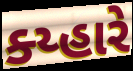
ક્ય્હારે